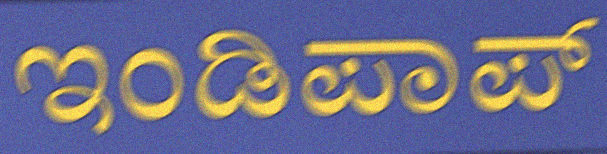
ಇಂಡಿಪಾಪ್